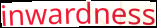
inwardness